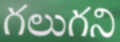
గలుగని